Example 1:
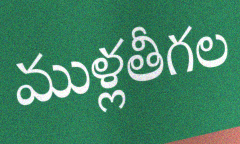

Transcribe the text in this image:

ముళ్లతీగల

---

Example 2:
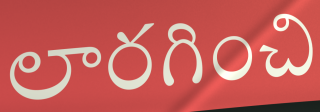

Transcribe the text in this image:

లారగించి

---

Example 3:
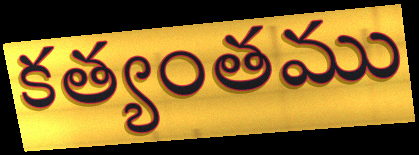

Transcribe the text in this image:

కత్యంతము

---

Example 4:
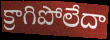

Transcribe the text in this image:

క్రాగిపోలేదా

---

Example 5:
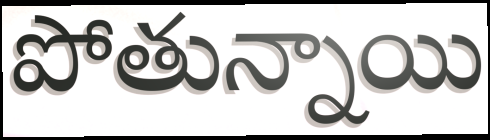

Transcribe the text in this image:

పోతున్నాయి